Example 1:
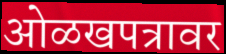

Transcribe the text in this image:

ओळखपत्रावर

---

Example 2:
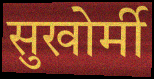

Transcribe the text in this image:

सुखोर्मी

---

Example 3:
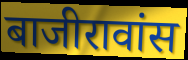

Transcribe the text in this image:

बाजीरावांस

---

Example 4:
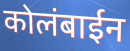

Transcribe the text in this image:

कोलंबाईन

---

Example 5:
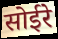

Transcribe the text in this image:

सोईरे